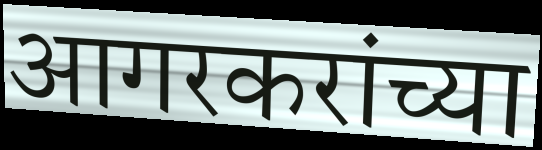
आगरकरांच्या